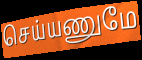
செய்யணுமே